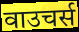
वाउचर्स